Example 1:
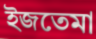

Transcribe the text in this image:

ইজতেমা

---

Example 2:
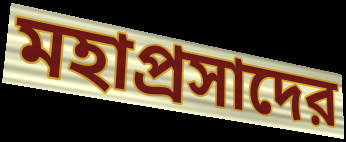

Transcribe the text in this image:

মহাপ্রসাদের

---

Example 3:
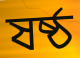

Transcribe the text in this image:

ষষ্ঠ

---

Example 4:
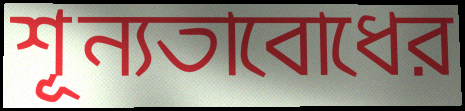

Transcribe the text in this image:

শূন্যতাবোধের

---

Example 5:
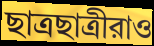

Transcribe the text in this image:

ছাত্রছাত্রীরাও